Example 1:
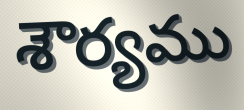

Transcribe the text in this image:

శౌర్యము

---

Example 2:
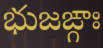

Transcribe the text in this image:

భుజఙ్గాః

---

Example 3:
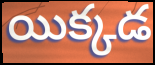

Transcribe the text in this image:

యిక్కడ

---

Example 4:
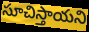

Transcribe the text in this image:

సూచిస్తాయని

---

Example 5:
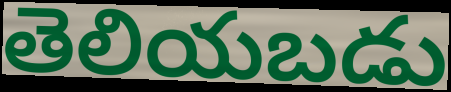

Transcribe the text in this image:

తెలియబడు